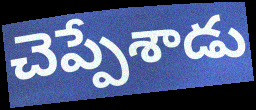
చెప్పేశాడు